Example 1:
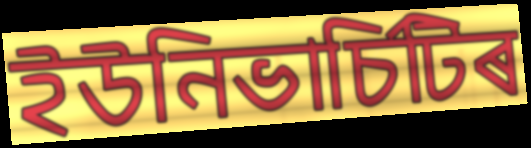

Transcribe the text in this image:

ইউনিভাৰ্চিটিৰ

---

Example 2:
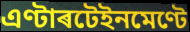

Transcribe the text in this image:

এণ্টাৰটেইনমেণ্টে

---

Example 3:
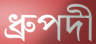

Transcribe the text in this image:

ধ্ৰুপদী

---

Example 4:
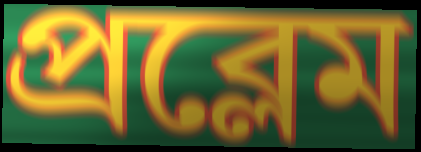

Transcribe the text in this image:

প্ৰব্লেম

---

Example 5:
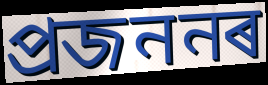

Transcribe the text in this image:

প্ৰজননৰ